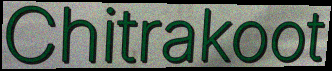
Chitrakoot